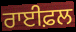
ਰਾਈਫ਼ਲ